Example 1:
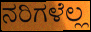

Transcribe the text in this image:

ನರಿಗಳೆಲ್ಲ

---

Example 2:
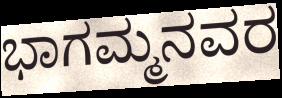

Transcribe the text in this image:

ಭಾಗಮ್ಮನವರ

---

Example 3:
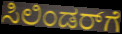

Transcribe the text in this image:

ಸಿಲಿಂಡರ್‌ಗೆ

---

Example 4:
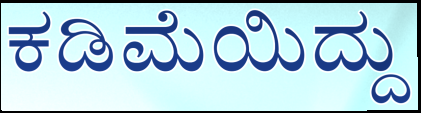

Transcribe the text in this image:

ಕಡಿಮೆಯಿದ್ದು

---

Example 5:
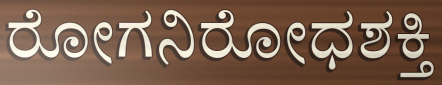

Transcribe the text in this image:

ರೋಗನಿರೋಧಶಕ್ತಿ